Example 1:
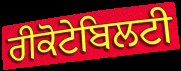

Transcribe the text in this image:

ਰੀਕੋਟੇਬਿਲਟੀ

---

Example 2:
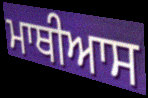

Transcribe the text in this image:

ਮਾਥੀਆਸ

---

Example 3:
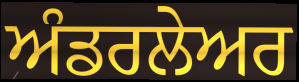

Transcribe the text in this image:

ਅੰਡਰਲੇਅਰ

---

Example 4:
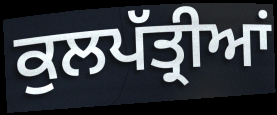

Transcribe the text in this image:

ਕੁਲਪੱਤ੍ਰੀਆਂ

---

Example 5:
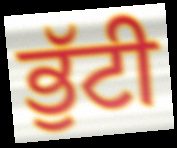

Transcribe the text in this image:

ਭੁੱਟੀ